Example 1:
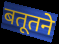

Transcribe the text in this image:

बतूतने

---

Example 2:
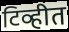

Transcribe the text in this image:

टिव्हीत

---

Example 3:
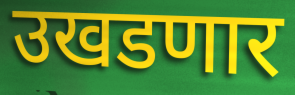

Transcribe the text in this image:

उखडणार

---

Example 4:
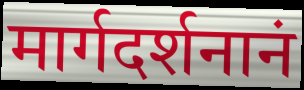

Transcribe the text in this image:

मार्गदर्शनानं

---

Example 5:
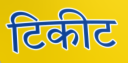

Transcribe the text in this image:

टिकीट